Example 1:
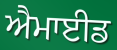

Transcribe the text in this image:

ਐਮਾਈਡ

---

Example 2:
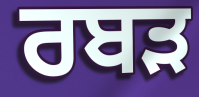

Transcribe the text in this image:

ਰਬੜ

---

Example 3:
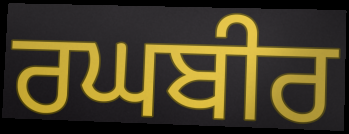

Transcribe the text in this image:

ਰਘਬੀਰ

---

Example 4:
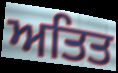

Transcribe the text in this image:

ਅਤਿਤ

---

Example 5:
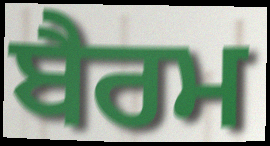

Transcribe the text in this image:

ਬੈਰਮ